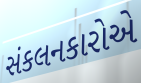
સંકલનકારોએ